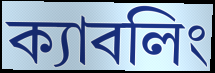
ক্যাবলিং